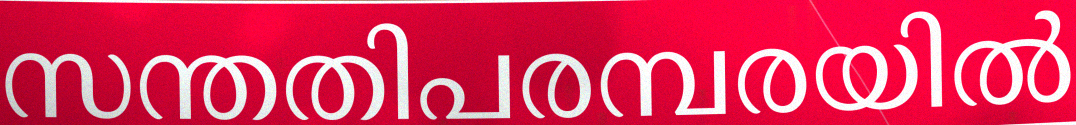
സന്തതിപരമ്പരയിൽ